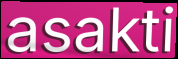
asakti